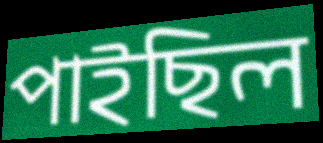
পাইছিল